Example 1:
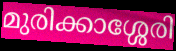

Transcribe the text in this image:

മുരിക്കാശ്ശേരി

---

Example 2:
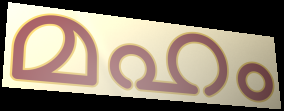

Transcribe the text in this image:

മഹം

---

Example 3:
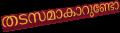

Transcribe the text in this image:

തടസമാകാറുണ്ടോ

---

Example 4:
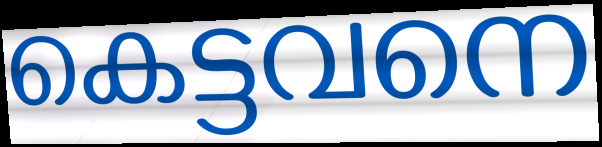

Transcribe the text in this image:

കെട്ടവനെ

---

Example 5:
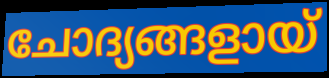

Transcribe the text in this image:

ചോദ്യങ്ങളായ്